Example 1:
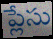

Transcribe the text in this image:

ప్లేసు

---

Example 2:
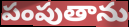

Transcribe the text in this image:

పంపుతాను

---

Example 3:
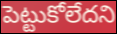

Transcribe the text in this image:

పెట్టుకోలేదని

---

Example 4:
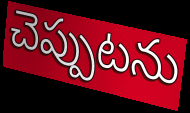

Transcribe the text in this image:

చెప్పుటను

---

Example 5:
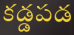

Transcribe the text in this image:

కడ్డపడ